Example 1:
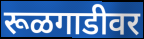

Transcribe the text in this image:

रूळगाडीवर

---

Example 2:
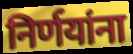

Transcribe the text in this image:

निर्णयांना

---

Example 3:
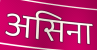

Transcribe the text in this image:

असिना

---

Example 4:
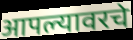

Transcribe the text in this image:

आपल्यावरचे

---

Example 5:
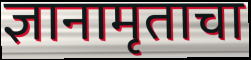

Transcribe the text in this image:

ज्ञानामृताचा